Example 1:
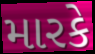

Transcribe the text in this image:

મારકે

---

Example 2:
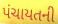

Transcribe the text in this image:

પંચાયતની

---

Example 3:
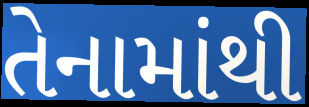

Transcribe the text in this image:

તેનામાંથી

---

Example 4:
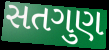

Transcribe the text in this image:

સતગુણ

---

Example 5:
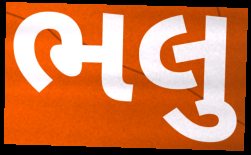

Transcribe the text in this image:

ભલુ